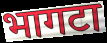
भागटा